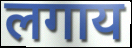
लगाय